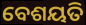
ବେଶୟତି